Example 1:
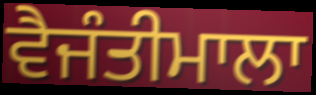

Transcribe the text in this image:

ਵੈਜੰਤੀਮਾਲਾ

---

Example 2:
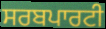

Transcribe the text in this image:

ਸਰਬਪਾਰਟੀ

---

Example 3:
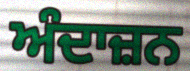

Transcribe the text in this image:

ਅੰਦਾਜ਼ਨ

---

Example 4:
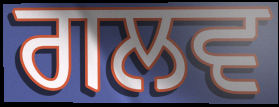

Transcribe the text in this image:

ਗਲਵ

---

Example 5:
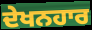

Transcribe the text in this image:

ਦੇਖਨਹਾਰ